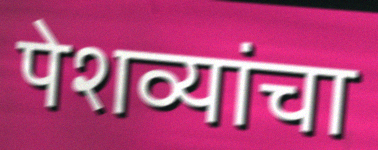
पेशव्यांचा